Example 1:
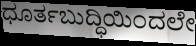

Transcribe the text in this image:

ಧೂರ್ತಬುದ್ಧಿಯಿಂದಲೇ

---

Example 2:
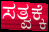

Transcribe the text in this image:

ಸತ್ವಕ್ಕೆ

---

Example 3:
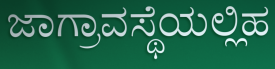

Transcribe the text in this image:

ಜಾಗ್ರಾವಸ್ಥೆಯಲ್ಲಿಹ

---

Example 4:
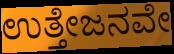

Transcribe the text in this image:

ಉತ್ತೇಜನವೇ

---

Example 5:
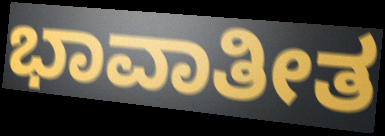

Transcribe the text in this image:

ಭಾವಾತೀತ